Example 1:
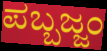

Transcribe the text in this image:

ಪಬ್ಬಜ್ಜಂ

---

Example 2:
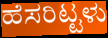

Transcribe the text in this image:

ಹೆಸರಿಟ್ಟಳು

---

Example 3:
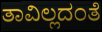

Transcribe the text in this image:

ತಾವಿಲ್ಲದಂತೆ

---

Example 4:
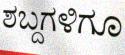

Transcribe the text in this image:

ಶಬ್ದಗಳಿಗೂ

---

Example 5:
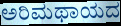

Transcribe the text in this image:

ಅರಿಮಥಾಯದ